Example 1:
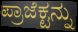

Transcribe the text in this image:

ಪ್ರಾಜೆಕ್ಟನ್ನು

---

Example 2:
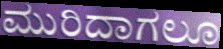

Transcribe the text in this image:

ಮುರಿದಾಗಲೂ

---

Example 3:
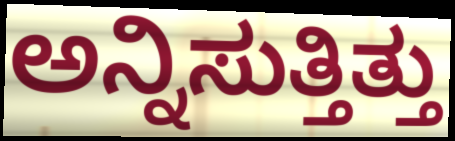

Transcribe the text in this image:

ಅನ್ನಿಸುತ್ತಿತ್ತು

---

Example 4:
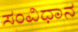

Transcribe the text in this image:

ಸಂವಿಧಾನ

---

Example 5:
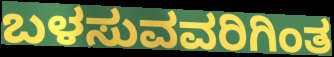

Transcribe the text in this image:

ಬಳಸುವವರಿಗಿಂತ